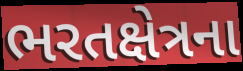
ભરતક્ષેત્રના